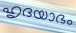
ഹൃദയാഭം